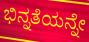
ಭಿನ್ನತೆಯನ್ನೇ